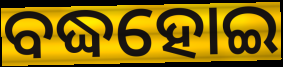
ବଦ୍ଧହୋଇ